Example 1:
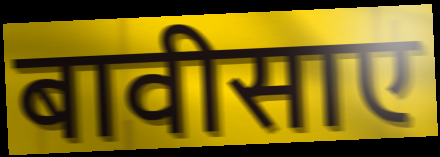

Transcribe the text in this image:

बावीसाए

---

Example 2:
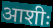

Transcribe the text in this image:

आशीः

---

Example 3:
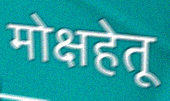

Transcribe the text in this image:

मोक्षहेतू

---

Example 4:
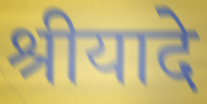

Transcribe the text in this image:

श्रीयादे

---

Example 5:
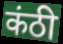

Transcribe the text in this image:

कंठी